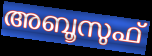
അബൂസുഫ്